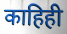
काहिही